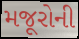
મજૂરોની